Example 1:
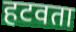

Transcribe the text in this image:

हटवता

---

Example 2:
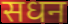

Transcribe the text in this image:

सधन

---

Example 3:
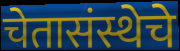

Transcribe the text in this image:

चेतासंस्थेचे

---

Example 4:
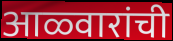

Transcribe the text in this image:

आळ्वारांची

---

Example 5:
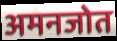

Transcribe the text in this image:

अमनजोत